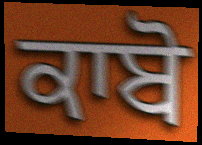
ਕਾਬੋ